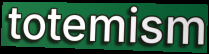
totemism